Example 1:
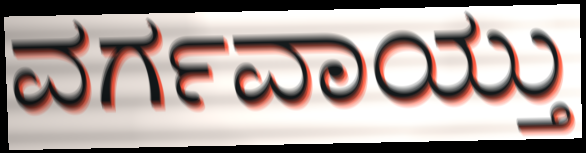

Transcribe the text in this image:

ವರ್ಗವಾಯ್ತು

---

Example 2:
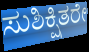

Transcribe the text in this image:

ಸುಶಿಕ್ಷಿತರೇ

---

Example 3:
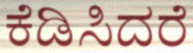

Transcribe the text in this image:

ಕೆಡಿಸಿದರೆ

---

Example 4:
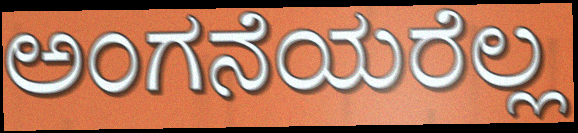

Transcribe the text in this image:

ಅಂಗನೆಯರೆಲ್ಲ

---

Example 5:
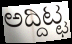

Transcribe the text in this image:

ಅದ್ದಿಟ್ಟ